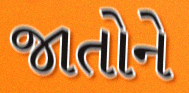
જાતોને